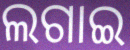
ଲଗାଇ